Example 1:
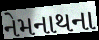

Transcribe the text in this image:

નેમનાથના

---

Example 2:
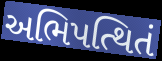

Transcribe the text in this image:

અભિપત્થિતં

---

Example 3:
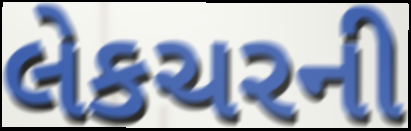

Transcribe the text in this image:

લેકચરની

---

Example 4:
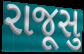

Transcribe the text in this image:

રાજૂસુ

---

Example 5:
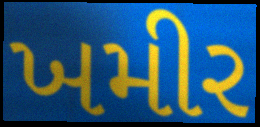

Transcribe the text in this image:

ખમીર